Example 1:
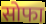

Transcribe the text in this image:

सोफा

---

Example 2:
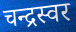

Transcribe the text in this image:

चन्द्रस्वर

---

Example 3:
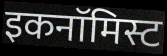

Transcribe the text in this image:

इकनॉमिस्‍ट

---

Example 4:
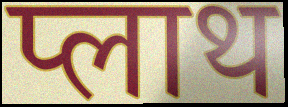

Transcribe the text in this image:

प्लाथ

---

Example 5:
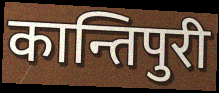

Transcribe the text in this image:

कान्तिपुरी